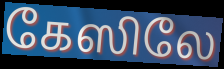
கேஸிலே